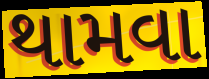
થામવા